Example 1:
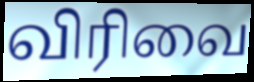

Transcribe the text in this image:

விரிவை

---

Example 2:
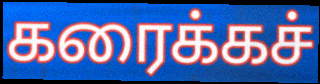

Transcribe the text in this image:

கரைக்கச்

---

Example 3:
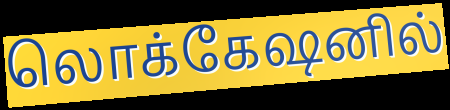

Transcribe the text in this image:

லொக்கேஷனில்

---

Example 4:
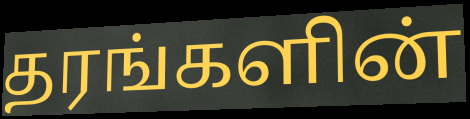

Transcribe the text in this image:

தரங்களின்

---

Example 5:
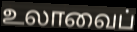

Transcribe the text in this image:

உலாவைப்